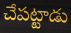
చేపట్టాడు